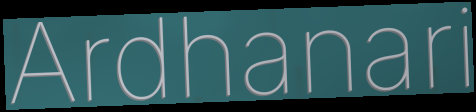
Ardhanari